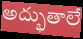
అద్భుతాలే